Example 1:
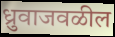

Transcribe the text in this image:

ध्रुवाजवळील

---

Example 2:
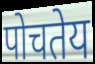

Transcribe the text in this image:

पोचतेय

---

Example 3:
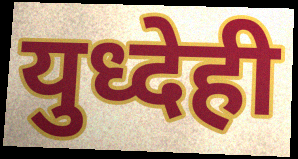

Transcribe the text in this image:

युध्देही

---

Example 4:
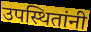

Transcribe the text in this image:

उपस्थितांनी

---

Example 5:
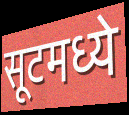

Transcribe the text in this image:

सूटमध्ये